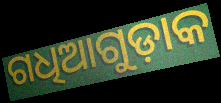
ଗଧିଆଗୁଡ଼ାକ